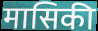
मासिकी